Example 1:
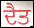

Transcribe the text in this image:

ਦੈਤ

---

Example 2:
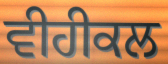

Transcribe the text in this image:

ਵੀਹੀਕਲ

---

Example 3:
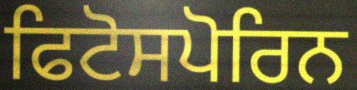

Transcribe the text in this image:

ਫਿਟੋਸਪੋਰਿਨ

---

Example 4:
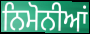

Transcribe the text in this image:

ਨਿਮੋਨੀਆਂ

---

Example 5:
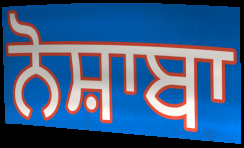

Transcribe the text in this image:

ਨੋਸ਼ਾਬਾ